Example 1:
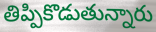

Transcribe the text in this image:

తిప్పికొడుతున్నారు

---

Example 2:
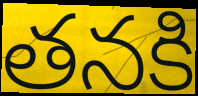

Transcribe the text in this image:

తనకి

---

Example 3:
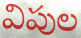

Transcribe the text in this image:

విపుల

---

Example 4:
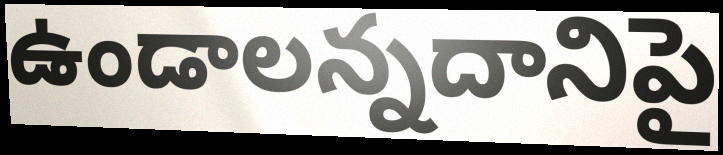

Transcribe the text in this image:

ఉండాలన్నదానిపై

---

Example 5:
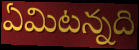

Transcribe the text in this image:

ఏమిటన్నది